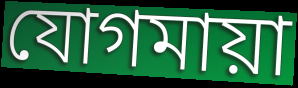
যোগমায়া